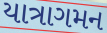
યાત્રાગમન